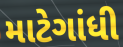
માટેગાંધી